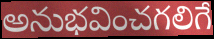
అనుభవించగలిగే